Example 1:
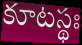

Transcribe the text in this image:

కూటస్థః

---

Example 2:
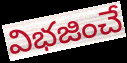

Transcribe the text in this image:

విభజించే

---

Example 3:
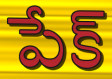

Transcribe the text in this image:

పేక్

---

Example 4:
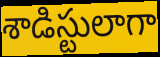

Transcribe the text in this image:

శాడిస్టులాగా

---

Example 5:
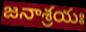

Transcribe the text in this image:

జనాశ్రయః